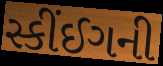
સ્કીંઈગની